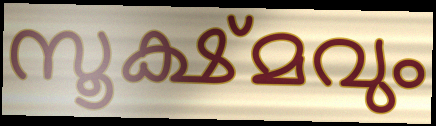
സൂക്ഷ്മവും